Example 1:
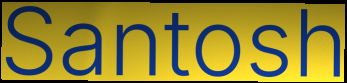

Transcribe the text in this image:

Santosh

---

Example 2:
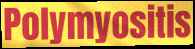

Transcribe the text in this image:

Polymyositis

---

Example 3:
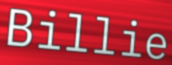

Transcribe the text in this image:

Billie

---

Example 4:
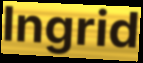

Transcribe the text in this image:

Ingrid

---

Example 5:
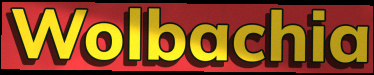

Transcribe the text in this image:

Wolbachia